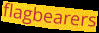
flagbearers